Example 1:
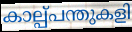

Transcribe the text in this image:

കാല്പ്പന്തുകളി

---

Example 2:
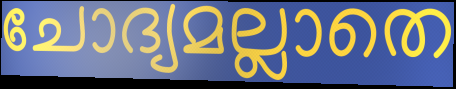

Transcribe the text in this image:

ചോദ്യമല്ലാതെ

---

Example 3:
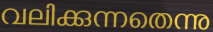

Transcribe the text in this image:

വലിക്കുന്നതെന്നു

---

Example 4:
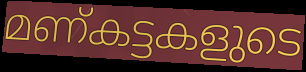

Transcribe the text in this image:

മണ്കട്ടകളുടെ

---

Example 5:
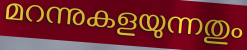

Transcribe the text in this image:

മറന്നുകളയുന്നതും